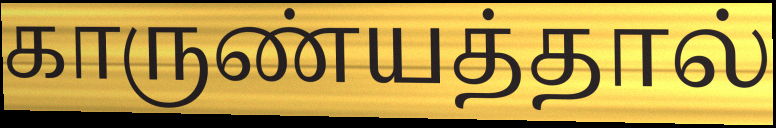
காருண்யத்தால்